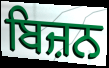
ਬਿਜ਼ਨ